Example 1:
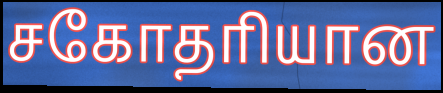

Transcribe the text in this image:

சகோதரியான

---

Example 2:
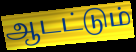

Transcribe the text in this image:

ஆடட்டும்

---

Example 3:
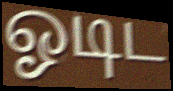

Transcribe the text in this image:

ஓடிட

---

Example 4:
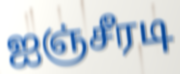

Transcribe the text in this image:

ஐஞ்சீரடி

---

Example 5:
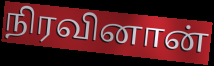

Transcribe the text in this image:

நிரவினான்